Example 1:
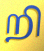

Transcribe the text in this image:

றி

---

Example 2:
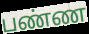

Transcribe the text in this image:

பண்ண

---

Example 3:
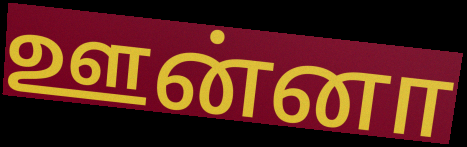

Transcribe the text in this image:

ஊன்னா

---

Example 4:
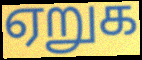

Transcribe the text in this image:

ஏறுக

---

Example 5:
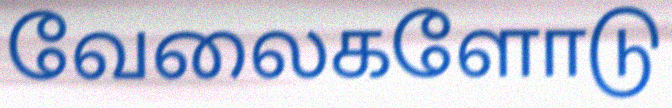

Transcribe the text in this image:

வேலைகளோடு